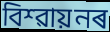
বিশ্ৱায়নৰ